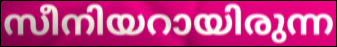
സീനിയറായിരുന്ന